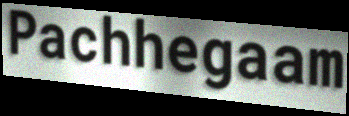
Pachhegaam